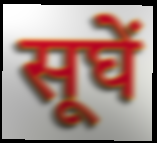
सूघें